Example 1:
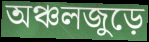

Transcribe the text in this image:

অঞ্চলজুড়ে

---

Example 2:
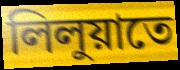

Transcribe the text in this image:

লিলুয়াতে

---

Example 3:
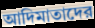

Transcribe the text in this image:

আদিমাতাদের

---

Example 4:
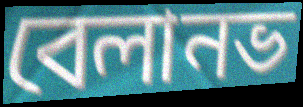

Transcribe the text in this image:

বেলানভ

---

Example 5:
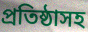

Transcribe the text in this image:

প্রতিষ্ঠাসহ